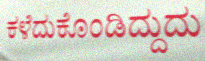
ಕಳೆದುಕೊಂಡಿದ್ದುದು